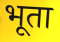
भूता